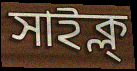
সাইক্ল্